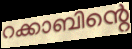
റക്കാബിന്റെ